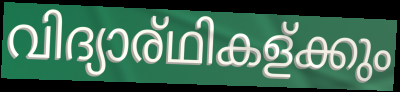
വിദ്യാര്ഥികള്ക്കും